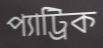
প্যাট্রিক